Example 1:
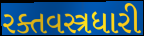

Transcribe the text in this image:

રક્તવસ્ત્રધારી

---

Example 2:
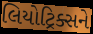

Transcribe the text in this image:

લિયોટ્રિક્સને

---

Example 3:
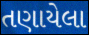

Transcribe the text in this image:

તણાયેલા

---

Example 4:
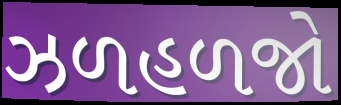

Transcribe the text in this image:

ઝળહળજો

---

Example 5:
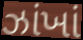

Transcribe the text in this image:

ઝાંખાં